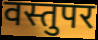
वस्तुपर